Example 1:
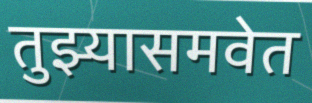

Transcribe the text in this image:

तुझ्यासमवेत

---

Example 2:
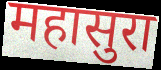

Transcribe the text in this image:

महासुरा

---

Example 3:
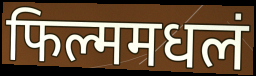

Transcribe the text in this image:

फिल्ममधलं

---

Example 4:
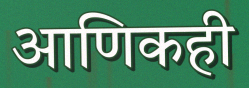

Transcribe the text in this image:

आणिकही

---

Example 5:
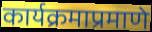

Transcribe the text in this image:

कार्यक्रमाप्रमाणे